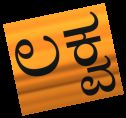
ಲಕ್ವ